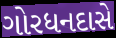
ગોરધનદાસે